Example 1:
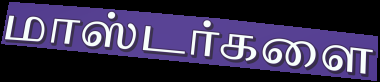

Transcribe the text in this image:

மாஸ்டர்களை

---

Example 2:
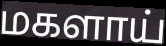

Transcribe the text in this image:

மகளாய்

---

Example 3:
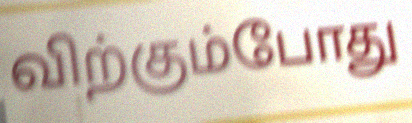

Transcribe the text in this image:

விற்கும்போது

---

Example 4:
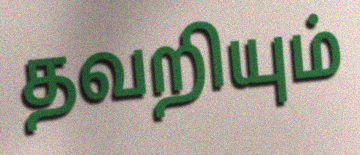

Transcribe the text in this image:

தவறியும்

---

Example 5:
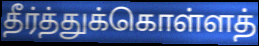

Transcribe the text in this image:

தீர்த்துக்கொள்ளத்